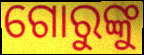
ଗୋରୁଙ୍କୁ